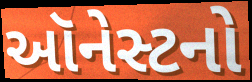
ઑનેસ્ટનો